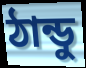
ঠান্ডু